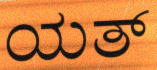
ಯತ್